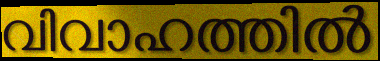
വിവാഹത്തിൽ